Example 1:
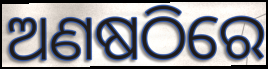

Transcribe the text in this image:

ଅଣଷଠିରେ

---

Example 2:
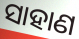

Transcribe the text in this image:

ସାହାଣ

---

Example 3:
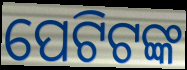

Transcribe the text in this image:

ପେଟିଟଙ୍କ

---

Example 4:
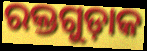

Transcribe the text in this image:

ରକ୍ତଗୁଡ଼ାକ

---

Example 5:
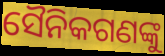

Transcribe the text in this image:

ସୈନିକଗଣଙ୍କୁ